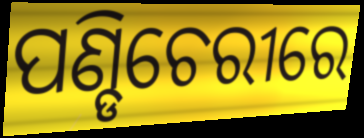
ପଣ୍ଡିଚେରୀରେ